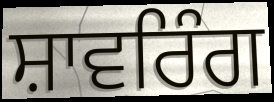
ਸ਼ਾਵਰਿੰਗ